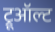
ट्रूऑल्ट